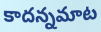
కాదన్నమాట